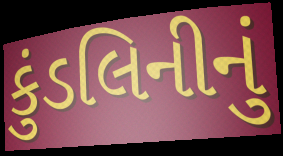
કુંડલિનીનું